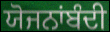
ਯੋਜਨਾਂਬੰਦੀ